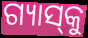
ଗ୍ୟାସ୍‌କୁ